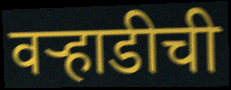
वऱ्हाडीची